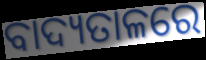
ବାଦ୍ୟତାଳରେ